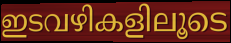
ഇടവഴികളിലൂടെ